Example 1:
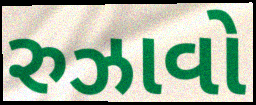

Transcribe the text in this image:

રુઝાવો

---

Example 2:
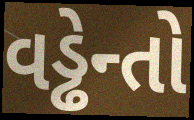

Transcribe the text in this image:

વડ્ઢેન્તો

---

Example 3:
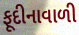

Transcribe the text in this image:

ફૂદીનાવાળી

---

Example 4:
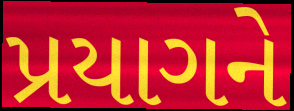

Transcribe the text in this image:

પ્રયાગને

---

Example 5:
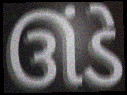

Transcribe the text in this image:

ઊંડે